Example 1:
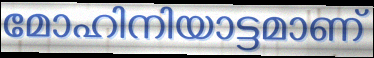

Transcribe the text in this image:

മോഹിനിയാട്ടമാണ്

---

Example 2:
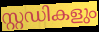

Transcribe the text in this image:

സ്റ്റഡികളും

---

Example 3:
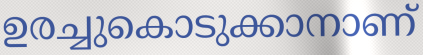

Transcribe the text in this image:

ഉരച്ചുകൊടുക്കാനാണ്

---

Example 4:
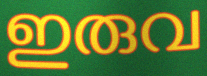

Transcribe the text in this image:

ഇരുവ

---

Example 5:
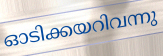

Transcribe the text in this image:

ഓടിക്കയറിവന്നു